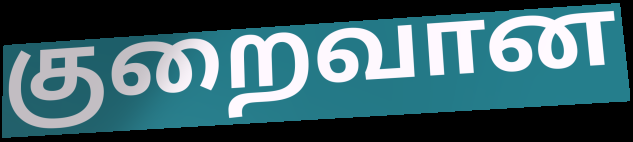
குறைவான